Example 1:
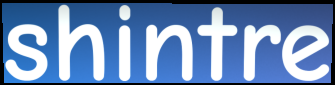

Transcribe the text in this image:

shintre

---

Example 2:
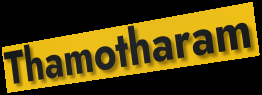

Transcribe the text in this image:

Thamotharam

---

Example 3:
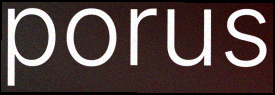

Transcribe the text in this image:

porus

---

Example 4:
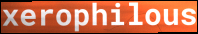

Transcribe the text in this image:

xerophilous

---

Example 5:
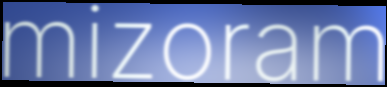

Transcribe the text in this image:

mizoram